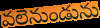
వలెనుండును